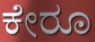
ಕೇರೂ